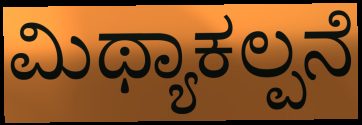
ಮಿಥ್ಯಾಕಲ್ಪನೆ